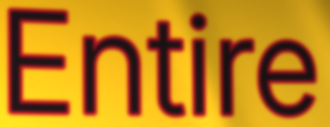
Entire